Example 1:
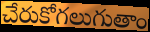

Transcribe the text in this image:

చేరుకోగలుగుతాం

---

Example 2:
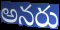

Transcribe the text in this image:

అనరు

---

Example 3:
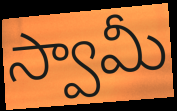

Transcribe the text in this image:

స్వామీ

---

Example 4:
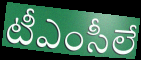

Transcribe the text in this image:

టీఎంసీలే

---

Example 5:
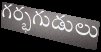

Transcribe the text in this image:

గర్భగుడులు